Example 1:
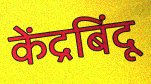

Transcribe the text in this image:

केंद्रबिंदू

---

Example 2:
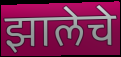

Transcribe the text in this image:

झालेचे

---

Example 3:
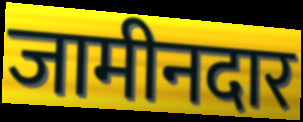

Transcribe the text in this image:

जामीनदार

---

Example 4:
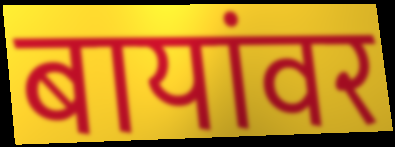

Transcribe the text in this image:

बायांवर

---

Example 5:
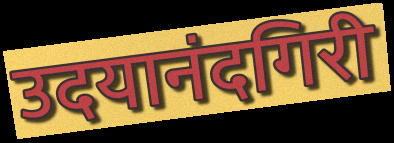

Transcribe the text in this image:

उदयानंदगिरी